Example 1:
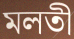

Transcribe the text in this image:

মলতী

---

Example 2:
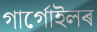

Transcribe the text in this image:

গাৰ্গোইলৰ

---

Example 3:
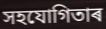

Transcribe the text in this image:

সহযোগিতাৰ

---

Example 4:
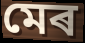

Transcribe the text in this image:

মেৰ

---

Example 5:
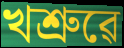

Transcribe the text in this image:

খশ্ৰুৱে